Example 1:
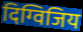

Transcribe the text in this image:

दिग्विजिय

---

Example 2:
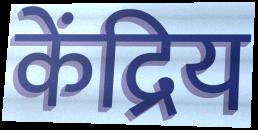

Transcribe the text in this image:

केंद्रिय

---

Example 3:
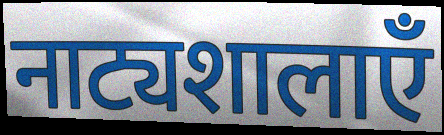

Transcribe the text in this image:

नाट्यशालाएँ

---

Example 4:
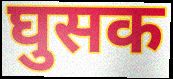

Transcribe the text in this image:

घुसक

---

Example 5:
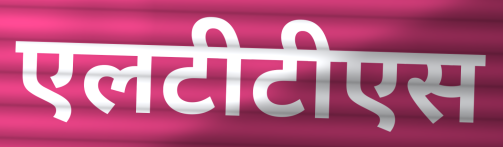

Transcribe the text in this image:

एलटीटीएस